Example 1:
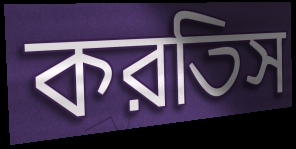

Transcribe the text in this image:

করতিস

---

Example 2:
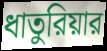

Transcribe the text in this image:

ধাতুরিয়ার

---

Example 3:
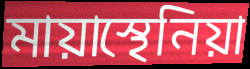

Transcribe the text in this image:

মায়াস্থেনিয়া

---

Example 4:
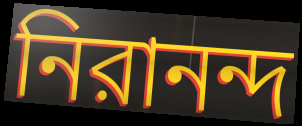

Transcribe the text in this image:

নিরানন্দ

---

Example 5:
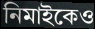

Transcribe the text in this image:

নিমাইকেও